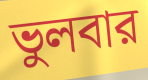
ভুলবার